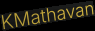
KMathavan